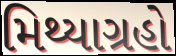
મિથ્યાગ્રહો